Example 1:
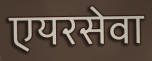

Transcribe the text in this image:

एयरसेवा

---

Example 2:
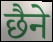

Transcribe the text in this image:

छैने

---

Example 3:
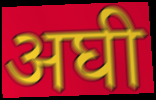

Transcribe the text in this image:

अघी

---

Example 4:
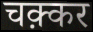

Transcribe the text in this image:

चक़्कर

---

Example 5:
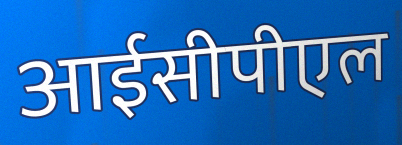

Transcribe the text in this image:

आईसीपीएल